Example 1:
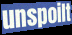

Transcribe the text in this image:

unspoilt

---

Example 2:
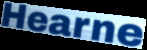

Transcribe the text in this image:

Hearne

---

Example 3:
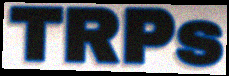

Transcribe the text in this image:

TRPs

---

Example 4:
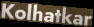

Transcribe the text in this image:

Kolhatkar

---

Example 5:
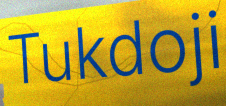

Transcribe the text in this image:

Tukdoji